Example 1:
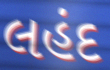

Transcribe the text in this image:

લહંદ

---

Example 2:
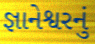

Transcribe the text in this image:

જ્ઞાનેશ્વરનું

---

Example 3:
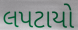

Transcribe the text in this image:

લપટાયો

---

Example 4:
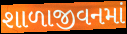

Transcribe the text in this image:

શાળાજીવનમાં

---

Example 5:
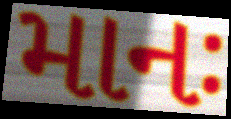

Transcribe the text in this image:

માનઃ